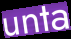
unta